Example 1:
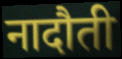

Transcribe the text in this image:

नादौती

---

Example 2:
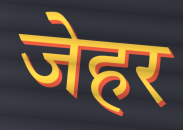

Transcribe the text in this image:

जेहर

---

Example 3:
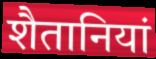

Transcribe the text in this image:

शैतानियां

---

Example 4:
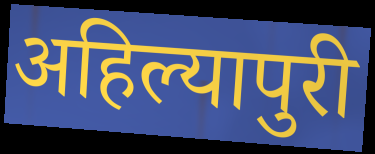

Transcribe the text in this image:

अहिल्यापुरी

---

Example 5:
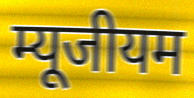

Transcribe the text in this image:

म्यूजीयम